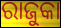
ରାଜୁକା